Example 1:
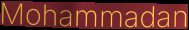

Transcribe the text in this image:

Mohammadan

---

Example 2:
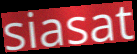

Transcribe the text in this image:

siasat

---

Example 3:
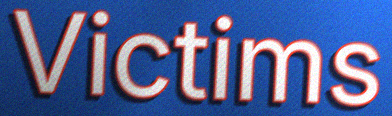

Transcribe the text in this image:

Victims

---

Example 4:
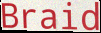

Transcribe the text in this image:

Braid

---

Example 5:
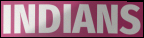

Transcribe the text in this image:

INDIANS